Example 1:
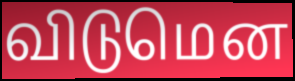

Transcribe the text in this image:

விடுமென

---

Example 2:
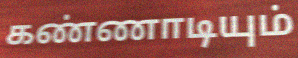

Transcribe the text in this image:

கண்ணாடியும்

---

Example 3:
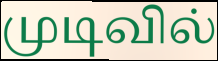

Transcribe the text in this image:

முடிவில்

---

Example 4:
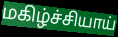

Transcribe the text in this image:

மகிழ்ச்சியாய்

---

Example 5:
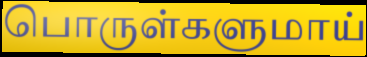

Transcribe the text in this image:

பொருள்களுமாய்